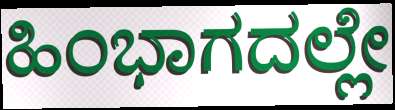
ಹಿಂಭಾಗದಲ್ಲೇ